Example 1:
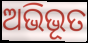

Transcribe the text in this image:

ଅଭିଭୂତ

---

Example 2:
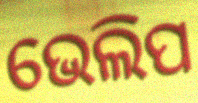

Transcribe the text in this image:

ଭେଲିପ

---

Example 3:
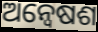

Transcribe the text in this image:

ଅନ୍ୱେଷଶ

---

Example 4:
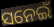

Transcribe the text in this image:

ସନେଇଁ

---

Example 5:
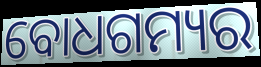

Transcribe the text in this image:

ବୋଧଗମ୍ୟର